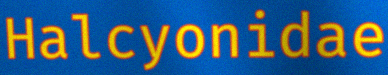
Halcyonidae